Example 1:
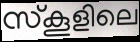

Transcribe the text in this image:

സ്കൂളിലെ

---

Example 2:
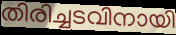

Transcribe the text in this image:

തിരിച്ചടവിനായി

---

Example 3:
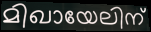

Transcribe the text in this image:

മിഖായേലിന്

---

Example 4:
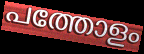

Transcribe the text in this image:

പത്തോളം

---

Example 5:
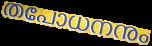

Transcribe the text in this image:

തപോധനനും